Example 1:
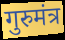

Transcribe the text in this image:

गुरुमंत्र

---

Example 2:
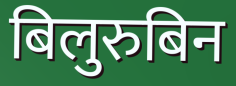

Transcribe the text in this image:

बिलुरुबिन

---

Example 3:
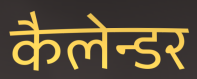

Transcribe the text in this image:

कैलेन्डर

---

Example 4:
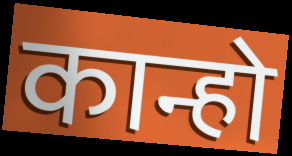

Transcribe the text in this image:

कान्हो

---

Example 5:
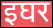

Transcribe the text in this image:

इघर